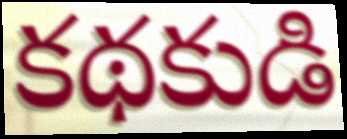
కథకుడి